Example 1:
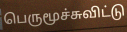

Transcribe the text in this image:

பெருமூச்சுவிட்டு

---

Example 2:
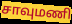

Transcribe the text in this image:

சாவுமணி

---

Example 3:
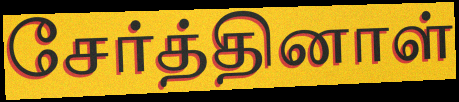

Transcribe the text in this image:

சேர்த்தினாள்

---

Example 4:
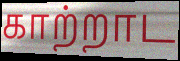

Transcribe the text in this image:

காற்றாட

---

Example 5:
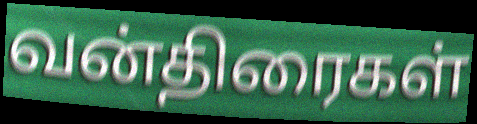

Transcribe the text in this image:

வன்திரைகள்